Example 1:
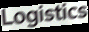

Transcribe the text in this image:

Logistics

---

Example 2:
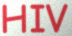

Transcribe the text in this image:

HIV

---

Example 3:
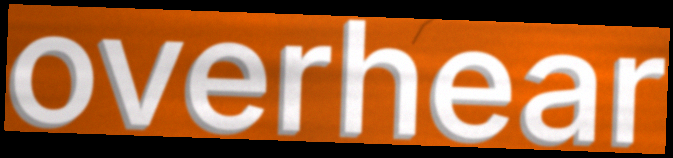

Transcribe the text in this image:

overhear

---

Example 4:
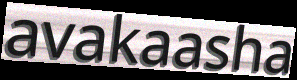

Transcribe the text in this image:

avakaasha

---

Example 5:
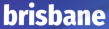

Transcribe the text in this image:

brisbane